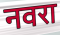
नवरा